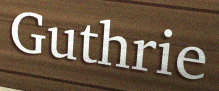
Guthrie